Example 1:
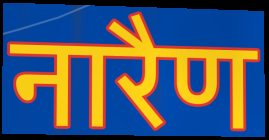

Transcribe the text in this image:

नारैण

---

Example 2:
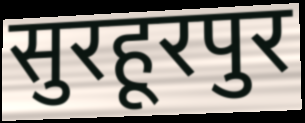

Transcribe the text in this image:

सुरहूरपुर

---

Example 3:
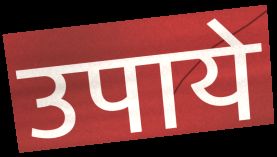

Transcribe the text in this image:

उपाये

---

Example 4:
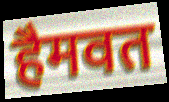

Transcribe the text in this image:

हैमवत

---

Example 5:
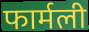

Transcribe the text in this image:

फार्मली